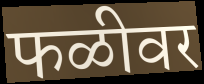
फळीवर